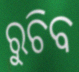
ରୁଚିବ